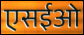
एसईओ